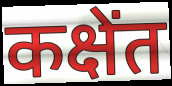
कक्षेंत